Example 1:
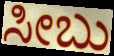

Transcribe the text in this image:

ಸೀಬು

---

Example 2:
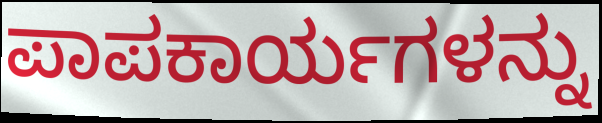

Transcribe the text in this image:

ಪಾಪಕಾರ್ಯಗಳನ್ನು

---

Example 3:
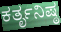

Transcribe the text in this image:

ಕರ್ತೃನಿಷ್ಠ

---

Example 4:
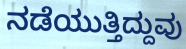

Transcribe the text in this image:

ನಡೆಯುತ್ತಿದ್ದುವು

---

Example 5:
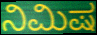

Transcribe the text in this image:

ನಿಮಿಷ